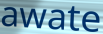
awate